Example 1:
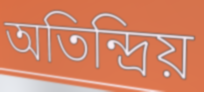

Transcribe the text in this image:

অতিন্দ্রিয়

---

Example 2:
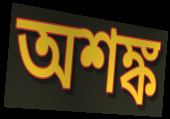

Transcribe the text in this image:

অশঙ্ক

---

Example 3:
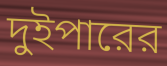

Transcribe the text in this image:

দুইপারের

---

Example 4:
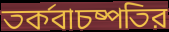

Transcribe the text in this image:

তর্কবাচষ্পতির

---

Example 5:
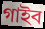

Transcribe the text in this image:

গাইব